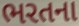
ભરતના